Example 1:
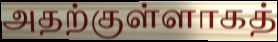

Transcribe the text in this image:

அதற்குள்ளாகத்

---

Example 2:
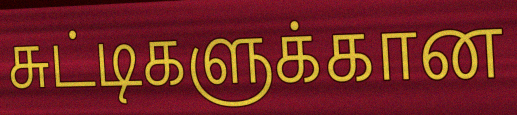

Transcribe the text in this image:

சுட்டிகளுக்கான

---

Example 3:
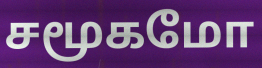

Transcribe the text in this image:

சமூகமோ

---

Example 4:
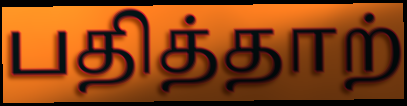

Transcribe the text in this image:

பதித்தாற்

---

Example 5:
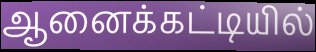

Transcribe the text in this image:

ஆனைக்கட்டியில்